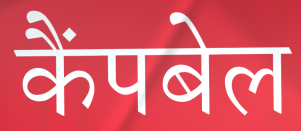
कैंपबेल